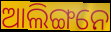
ଆଲିଙ୍ଗନେ